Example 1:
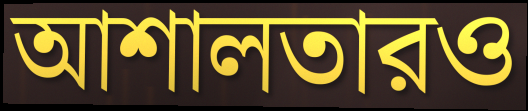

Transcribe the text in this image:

আশালতারও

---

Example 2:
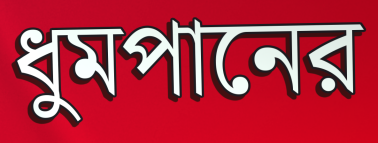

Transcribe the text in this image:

ধুমপানের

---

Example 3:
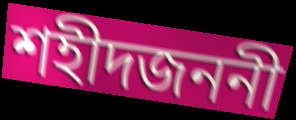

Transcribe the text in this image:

শহীদজননী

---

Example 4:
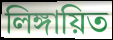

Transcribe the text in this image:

লিঙ্গায়িত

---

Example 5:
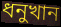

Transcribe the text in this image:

ধনুখান